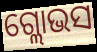
ଗ୍ଲୋଭସ